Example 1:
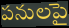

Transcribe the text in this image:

పనులపై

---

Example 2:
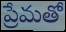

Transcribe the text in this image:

ప్రేమతో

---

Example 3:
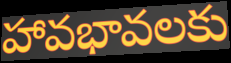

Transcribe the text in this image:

హావభావలకు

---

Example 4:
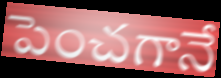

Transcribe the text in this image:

పెంచగానే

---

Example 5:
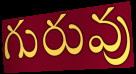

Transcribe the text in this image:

గురువు